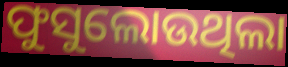
ଫୁସୁଲୋଉଥିଲା